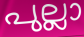
പുല്ലാ